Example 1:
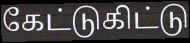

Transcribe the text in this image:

கேட்டுகிட்டு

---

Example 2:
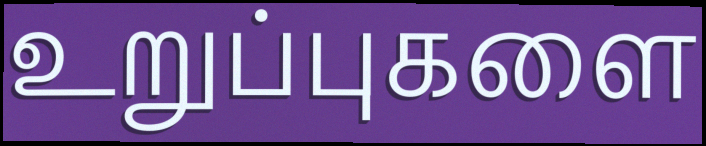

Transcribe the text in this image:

உறுப்புகளை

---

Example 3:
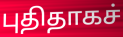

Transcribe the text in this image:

புதிதாகச்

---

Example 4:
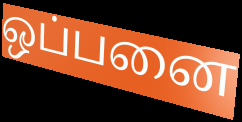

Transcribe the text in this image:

ஒப்பனை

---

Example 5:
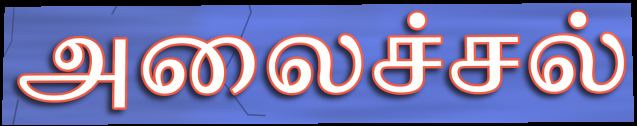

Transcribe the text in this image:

அலைச்சல்